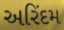
અરિંદમ